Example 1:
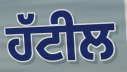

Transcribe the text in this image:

ਹੱਟੀਲ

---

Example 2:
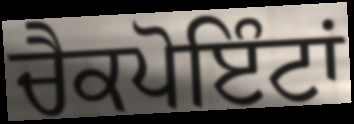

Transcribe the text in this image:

ਚੈਕਪੋਇੰਟਾਂ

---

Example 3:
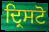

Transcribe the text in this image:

ਦ੍ਰਿਸਟੋ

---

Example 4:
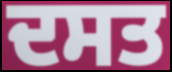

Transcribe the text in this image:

ਦਸਤ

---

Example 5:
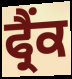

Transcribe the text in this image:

ਫ੍ਰੈਂਕ